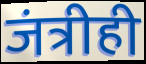
जंत्रीही